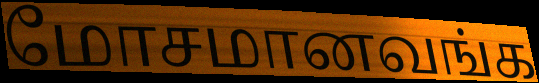
மோசமானவங்க